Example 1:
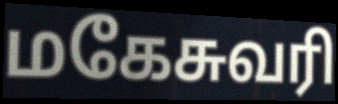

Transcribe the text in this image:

மகேசுவரி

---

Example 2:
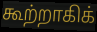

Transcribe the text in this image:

கூற்றாகிக்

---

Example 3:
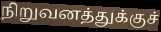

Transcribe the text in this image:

நிறுவனத்துக்குச்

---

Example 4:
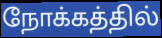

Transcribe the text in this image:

நோக்கத்தில்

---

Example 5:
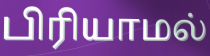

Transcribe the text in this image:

பிரியாமல்